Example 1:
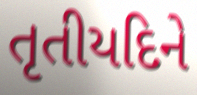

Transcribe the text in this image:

તૃતીયદિને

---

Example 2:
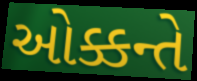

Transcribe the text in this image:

ઓક્કન્તે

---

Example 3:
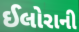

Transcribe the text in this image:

ઈલોરાની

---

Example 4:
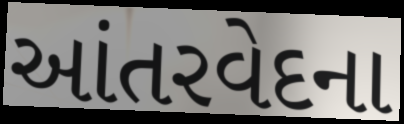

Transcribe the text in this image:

આંતરવેદના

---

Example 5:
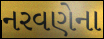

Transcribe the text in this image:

નરવણેના